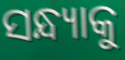
ସନ୍ଧ୍ୟାକୁ